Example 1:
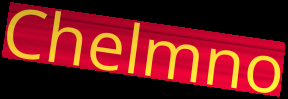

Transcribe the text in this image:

Chelmno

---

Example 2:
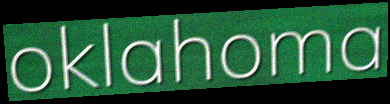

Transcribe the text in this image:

oklahoma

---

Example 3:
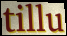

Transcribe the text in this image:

tillu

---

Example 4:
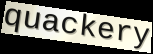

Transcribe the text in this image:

quackery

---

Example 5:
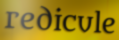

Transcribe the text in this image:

redicule